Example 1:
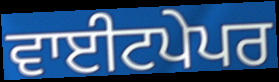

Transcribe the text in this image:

ਵਾਈਟਪੇਪਰ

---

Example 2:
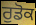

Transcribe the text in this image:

ਰੁਡੋਕ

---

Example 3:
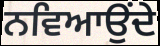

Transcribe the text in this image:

ਨਵਿਆਉਂਦੇ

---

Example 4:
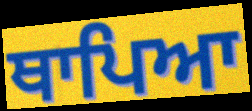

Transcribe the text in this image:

ਥਾਪਿਆ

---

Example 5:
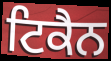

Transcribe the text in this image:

ਟਿਕੈਨ